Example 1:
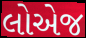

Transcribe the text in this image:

લોએજ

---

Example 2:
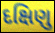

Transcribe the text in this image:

દક્ષિણુ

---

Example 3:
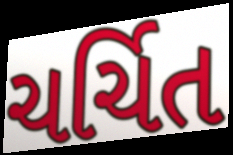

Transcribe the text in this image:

ચર્ચિત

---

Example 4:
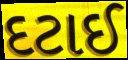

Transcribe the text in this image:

દટાઈ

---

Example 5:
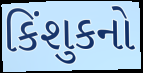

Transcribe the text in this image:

કિંશુકનો